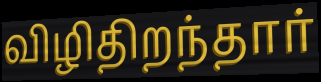
விழிதிறந்தார்